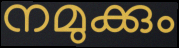
നമുക്കും